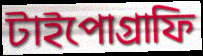
টাইপোগ্রাফি